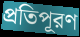
প্রতিপূরণ